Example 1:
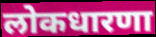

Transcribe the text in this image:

लोकधारणा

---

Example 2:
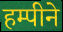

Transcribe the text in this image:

हम्पीने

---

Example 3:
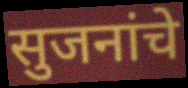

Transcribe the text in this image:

सुजनांचे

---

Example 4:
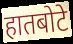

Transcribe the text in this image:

हातबोटे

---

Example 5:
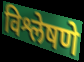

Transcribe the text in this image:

विश्लेषणे